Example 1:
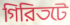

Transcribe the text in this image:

গিরিতটে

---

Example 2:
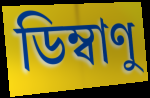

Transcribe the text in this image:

ডিম্বাণু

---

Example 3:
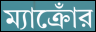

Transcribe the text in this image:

ম্যাক্রোঁর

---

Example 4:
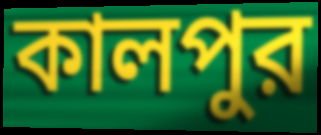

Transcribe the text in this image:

কালপুর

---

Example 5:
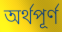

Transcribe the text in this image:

অর্থপূর্ণ